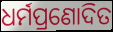
ଧର୍ମପ୍ରଣୋଦିତ